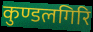
कुण्डलगिरि